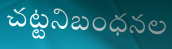
చట్టనిబంధనల